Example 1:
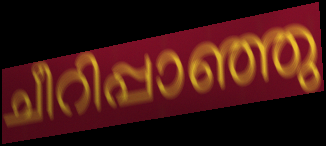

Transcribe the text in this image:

ചീറിപ്പാഞ്ഞു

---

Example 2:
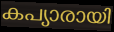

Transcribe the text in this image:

കപ്യാരായി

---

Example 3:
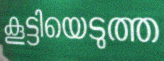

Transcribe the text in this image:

കൂട്ടിയെടുത്ത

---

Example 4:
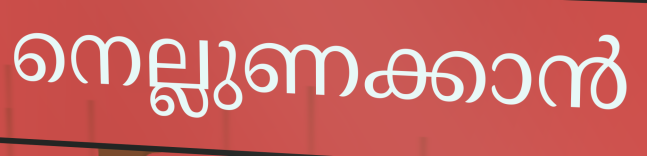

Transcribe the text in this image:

നെല്ലുണക്കാൻ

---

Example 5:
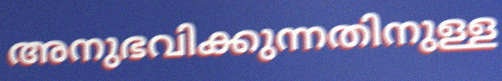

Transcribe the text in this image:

അനുഭവിക്കുന്നതിനുള്ള